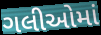
ગલીઓમાં